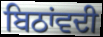
ਬਿਠਾਂਵਦੀ